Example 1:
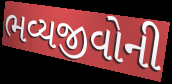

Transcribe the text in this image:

ભવ્યજીવોની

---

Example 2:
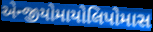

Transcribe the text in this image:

એન્જીયોમાયોલિપોમાસ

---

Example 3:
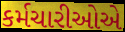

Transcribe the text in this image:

કર્મચારીઓએ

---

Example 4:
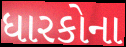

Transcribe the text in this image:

ધારકોના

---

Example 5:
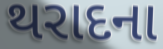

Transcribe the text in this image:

થરાદના